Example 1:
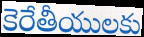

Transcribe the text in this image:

కెరేతీయులకు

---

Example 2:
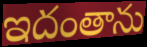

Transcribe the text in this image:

ఇదంతాను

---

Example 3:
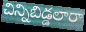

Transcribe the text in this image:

చిన్నిబిడ్డలారా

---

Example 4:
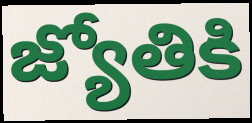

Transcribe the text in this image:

జ్యోతికి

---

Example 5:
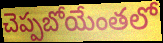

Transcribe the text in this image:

చెప్పబోయేంతలో